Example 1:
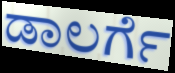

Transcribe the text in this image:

ಡಾಲರ್ಗೆ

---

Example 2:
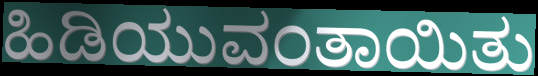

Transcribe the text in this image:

ಹಿಡಿಯುವಂತಾಯಿತು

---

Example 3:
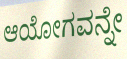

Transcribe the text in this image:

ಆಯೋಗವನ್ನೇ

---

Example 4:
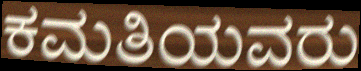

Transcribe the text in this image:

ಕಮತಿಯವರು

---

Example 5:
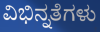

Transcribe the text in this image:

ವಿಭಿನ್ನತೆಗಳು